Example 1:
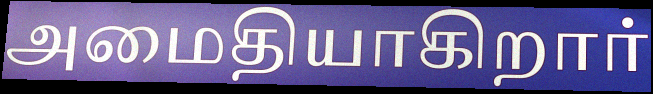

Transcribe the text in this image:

அமைதியாகிறார்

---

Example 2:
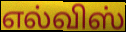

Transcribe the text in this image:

எல்விஸ்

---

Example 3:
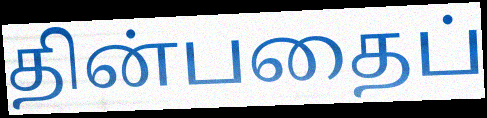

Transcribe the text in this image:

தின்பதைப்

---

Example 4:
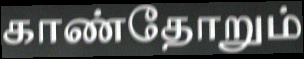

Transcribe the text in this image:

காண்தோறும்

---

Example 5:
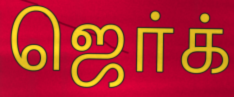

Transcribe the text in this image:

ஜெர்க்